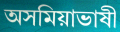
অসমিয়াভাষী